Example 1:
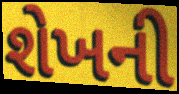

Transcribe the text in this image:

શેખની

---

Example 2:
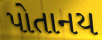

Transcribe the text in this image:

પોતાનય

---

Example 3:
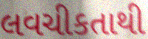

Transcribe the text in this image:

લવચીકતાથી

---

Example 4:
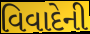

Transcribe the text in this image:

વિવાદેની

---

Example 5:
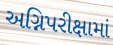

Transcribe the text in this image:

અગ્નિપરીક્ષામાં